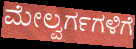
ಮೇಲ್ವರ್ಗಗಳಿಗೆ